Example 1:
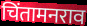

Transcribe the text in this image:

चिंतामनराव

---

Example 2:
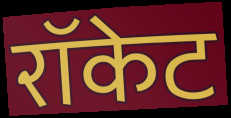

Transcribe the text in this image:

रॉकेट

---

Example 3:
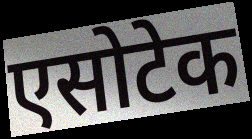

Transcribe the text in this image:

एसोटेक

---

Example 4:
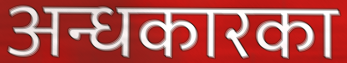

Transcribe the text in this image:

अन्धकारका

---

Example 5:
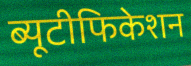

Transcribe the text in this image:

ब्यूटीफिकेशन